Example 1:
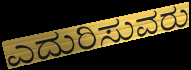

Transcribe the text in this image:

ಎದುರಿಸುವರು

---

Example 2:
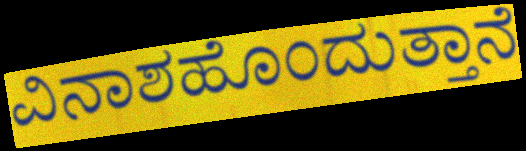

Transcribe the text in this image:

ವಿನಾಶಹೊಂದುತ್ತಾನೆ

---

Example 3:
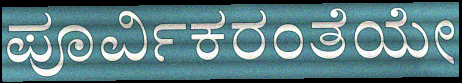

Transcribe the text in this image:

ಪೂರ್ವಿಕರಂತೆಯೇ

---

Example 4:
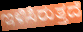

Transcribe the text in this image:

ಇಳಿಸಿರುತ್ತದೆ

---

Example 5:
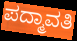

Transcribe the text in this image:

ಪದ್ಮಾವತಿ